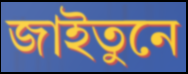
জাইতুনে